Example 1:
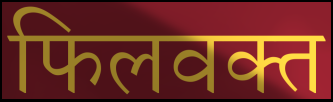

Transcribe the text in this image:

फिलवक्‍त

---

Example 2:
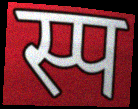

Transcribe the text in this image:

स्प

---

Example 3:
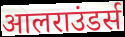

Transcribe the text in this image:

आलराउंडर्स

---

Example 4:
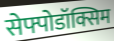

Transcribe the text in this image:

सेफ्पोडॉक्सिम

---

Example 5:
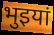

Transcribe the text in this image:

भुइयां